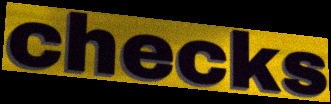
checks